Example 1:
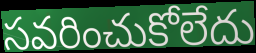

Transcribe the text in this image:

సవరించుకోలేదు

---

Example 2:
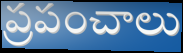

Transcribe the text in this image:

ప్రపంచాలు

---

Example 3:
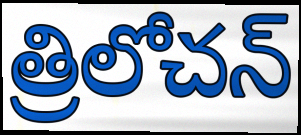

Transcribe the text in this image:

త్రిలోచన్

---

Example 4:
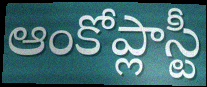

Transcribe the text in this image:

ఆంకోప్లాస్టీ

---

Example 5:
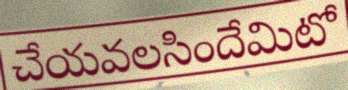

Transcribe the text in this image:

చేయవలసిందేమిటో